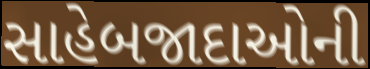
સાહેબજાદાઓની